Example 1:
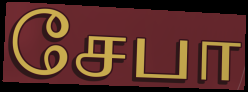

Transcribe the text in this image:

சேபா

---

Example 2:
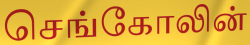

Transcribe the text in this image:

செங்கோலின்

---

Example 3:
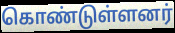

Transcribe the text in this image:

கொண்டுள்ளனர்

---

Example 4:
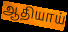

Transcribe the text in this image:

ஆதியாய்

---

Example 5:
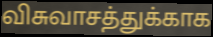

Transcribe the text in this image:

விசுவாசத்துக்காக